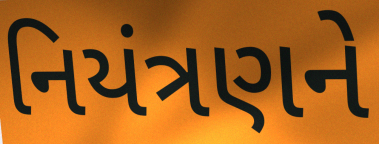
નિયંત્રણને